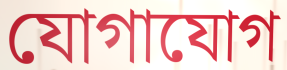
যোগাযোগ